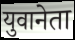
युवानेता